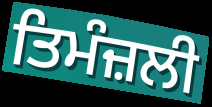
ਤਿਮੰਜ਼ਲੀ